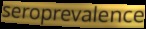
seroprevalence